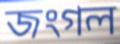
জংগল